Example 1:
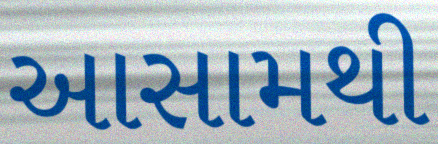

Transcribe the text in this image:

આસામથી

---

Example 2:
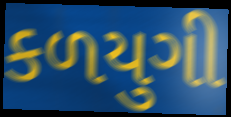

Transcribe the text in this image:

કળયુગી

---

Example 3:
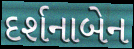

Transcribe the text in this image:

દર્શનાબેન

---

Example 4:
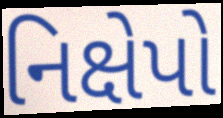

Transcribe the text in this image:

નિક્ષેપો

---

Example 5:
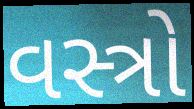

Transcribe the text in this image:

વસ્ત્રો